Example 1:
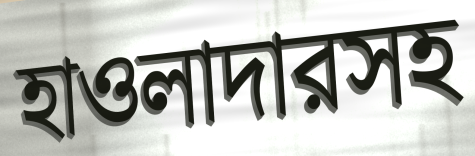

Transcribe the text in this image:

হাওলাদারসহ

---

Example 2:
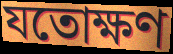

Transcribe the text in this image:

যতোক্ষণ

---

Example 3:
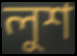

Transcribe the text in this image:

লুশ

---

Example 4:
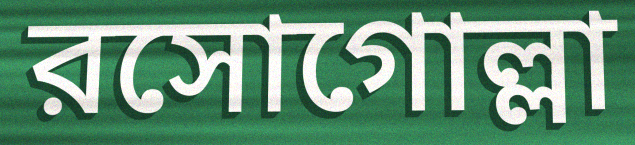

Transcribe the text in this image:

রসোগোল্লা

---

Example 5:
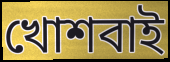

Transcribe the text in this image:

খোশবাই